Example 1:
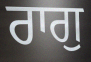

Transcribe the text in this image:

ਰਾਗੁ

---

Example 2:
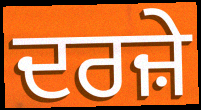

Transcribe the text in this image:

ਦਰਜ਼ੇ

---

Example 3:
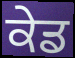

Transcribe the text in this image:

ਕੇਡ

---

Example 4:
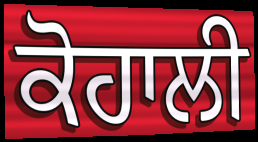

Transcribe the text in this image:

ਕੋਹਾਲੀ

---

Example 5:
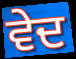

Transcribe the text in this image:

ਵੇਦ